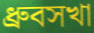
ধ্রুবসখা